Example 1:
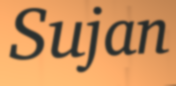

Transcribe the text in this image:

Sujan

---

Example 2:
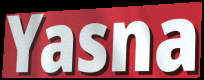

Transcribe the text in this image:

Yasna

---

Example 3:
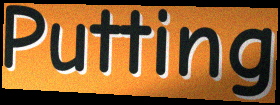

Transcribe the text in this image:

Putting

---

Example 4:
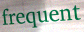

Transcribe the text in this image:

frequent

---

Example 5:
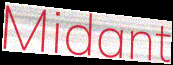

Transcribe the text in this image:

Midant